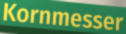
Kornmesser